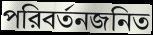
পরিবর্তনজনিত